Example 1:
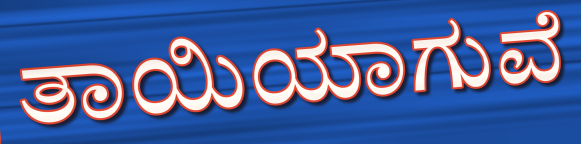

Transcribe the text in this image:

ತಾಯಿಯಾಗುವೆ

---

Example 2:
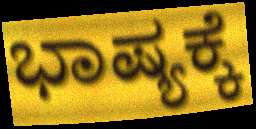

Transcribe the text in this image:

ಭಾಷ್ಯಕ್ಕೆ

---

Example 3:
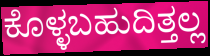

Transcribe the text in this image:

ಕೊಳ್ಳಬಹುದಿತ್ತಲ್ಲ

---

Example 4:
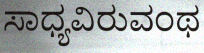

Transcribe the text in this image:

ಸಾಧ್ಯವಿರುವಂಥ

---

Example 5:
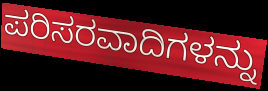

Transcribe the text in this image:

ಪರಿಸರವಾದಿಗಳನ್ನು